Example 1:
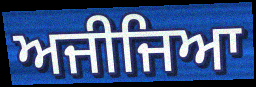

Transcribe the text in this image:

ਅਜੀਜਿਆ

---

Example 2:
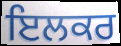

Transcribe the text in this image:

ਇਲਕਰ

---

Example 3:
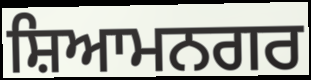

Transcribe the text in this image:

ਸ਼ਿਆਮਨਗਰ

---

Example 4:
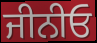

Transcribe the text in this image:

ਜੀਨੀਓ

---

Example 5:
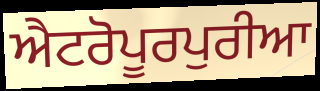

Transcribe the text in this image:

ਐਟਰੋਪੂਰਪੁਰੀਆ